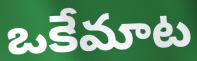
ఒకేమాట